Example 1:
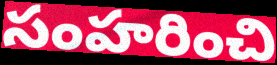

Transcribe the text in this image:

సంహరించి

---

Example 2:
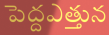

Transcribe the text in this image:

పెద్దఎత్తున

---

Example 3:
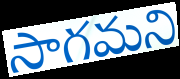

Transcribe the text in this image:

సాగమని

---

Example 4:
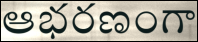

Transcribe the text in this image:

ఆభరణంగా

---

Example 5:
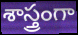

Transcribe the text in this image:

శాస్త్రంగా